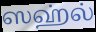
ஸஹ்ல்